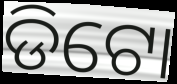
ଡିଟୋ